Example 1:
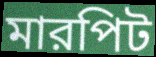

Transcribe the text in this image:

মারপিট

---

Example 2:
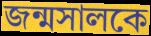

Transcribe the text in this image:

জন্মসালকে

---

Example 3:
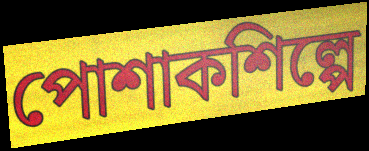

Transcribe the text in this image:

পোশাকশিল্পে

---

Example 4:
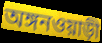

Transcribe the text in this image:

অঙ্গনওয়াড়ী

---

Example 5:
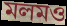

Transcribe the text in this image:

মলমও